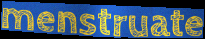
menstruate